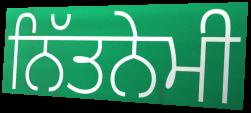
ਨਿੱਤਨੇਮੀ